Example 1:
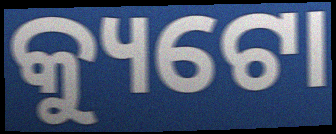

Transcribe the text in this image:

କ୍ୟୁଟୋ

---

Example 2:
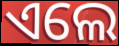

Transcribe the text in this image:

ଏଲେ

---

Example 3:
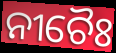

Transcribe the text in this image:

ନୀଚୈଃ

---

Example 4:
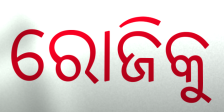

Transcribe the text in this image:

ରୋଜିକୁ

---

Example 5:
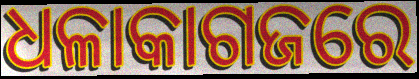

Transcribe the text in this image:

ଧଳାକାଗଜରେ